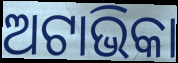
ଅଟାଭିକା